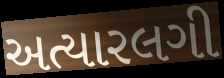
અત્યારલગી